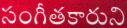
సంగీతకారుని